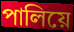
পালিয়ে